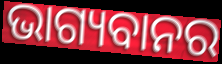
ଭାଗ୍ୟବାନର